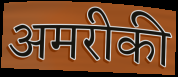
अमरीकी